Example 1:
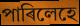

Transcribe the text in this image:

পাৰিলেহে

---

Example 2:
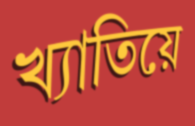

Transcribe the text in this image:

খ্যাতিয়ে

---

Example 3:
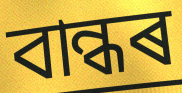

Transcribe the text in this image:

বান্ধৰ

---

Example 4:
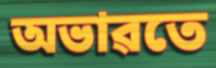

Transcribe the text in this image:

অভাৱতে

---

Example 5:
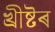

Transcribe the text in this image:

খ্ৰীষ্টৰ